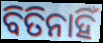
ବିତିନାହିଁ